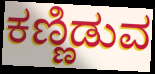
ಕಣ್ಣಿಡುವ